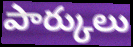
పార్కులు